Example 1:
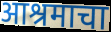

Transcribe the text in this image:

आश्रमाचा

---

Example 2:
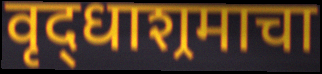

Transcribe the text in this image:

वृद्धाश्रमाचा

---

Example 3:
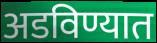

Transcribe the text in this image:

अडविण्यात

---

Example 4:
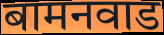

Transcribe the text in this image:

बामनवाड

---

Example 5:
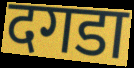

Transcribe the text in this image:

दगडा